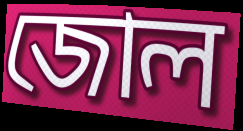
জোল